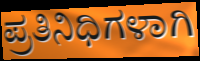
ಪ್ರತಿನಿಧಿಗಳಾಗಿ